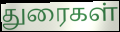
துரைகள்